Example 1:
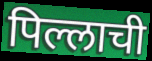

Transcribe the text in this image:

पिल्लाची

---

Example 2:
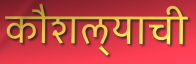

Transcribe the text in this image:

कौशल्याची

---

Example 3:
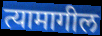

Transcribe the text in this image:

त्यामागील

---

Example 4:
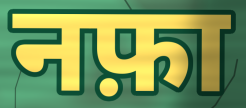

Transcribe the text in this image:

नफ़ा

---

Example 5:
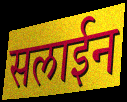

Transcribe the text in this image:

सलाईन